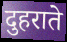
दुहराते